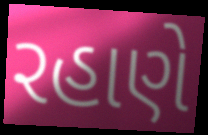
રહાણે